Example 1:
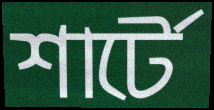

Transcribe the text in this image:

শার্টে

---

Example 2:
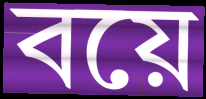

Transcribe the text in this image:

বয়ে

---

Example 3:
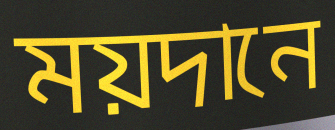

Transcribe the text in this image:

ময়দানে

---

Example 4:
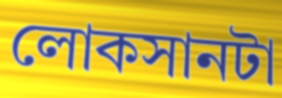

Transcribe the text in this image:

লোকসানটা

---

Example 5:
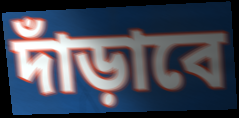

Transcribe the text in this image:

দাঁড়াবে